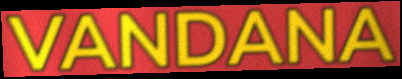
VANDANA